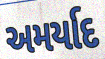
અમર્યાદ